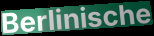
Berlinische